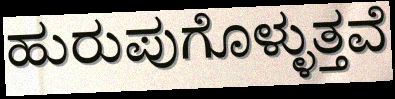
ಹುರುಪುಗೊಳ್ಳುತ್ತವೆ